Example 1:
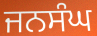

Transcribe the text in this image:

ਜਨਸੰਘ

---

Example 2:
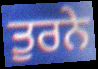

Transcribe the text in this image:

ਤੁਰਨੇ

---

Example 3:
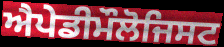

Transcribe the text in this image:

ਐਪੇਡੀਮੌਲੋਜਿਸਟ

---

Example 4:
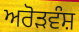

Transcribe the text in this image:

ਅਰੋੜਵੰਸ਼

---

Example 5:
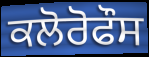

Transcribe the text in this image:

ਕਲੋਰੋਫੌਸ